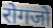
रोगजो